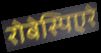
रोबेस्पिएरे